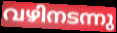
വഴിനടന്നു